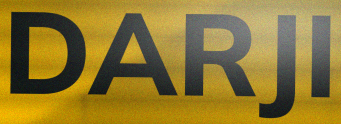
DARJI